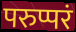
परुप्परं